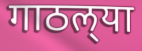
गाठल्या